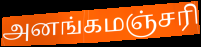
அனங்கமஞ்சரி